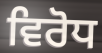
ਵਿਰੋਧ